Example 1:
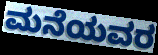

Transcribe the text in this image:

ಮನೆಯವರ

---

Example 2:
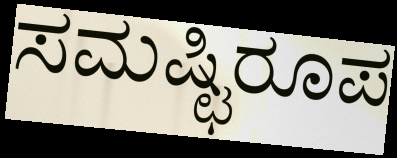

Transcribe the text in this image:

ಸಮಷ್ಟಿರೂಪ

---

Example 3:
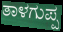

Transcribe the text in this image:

ತಾಳಗುಪ್ಪ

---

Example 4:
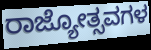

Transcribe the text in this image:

ರಾಜ್ಯೋತ್ಸವಗಳ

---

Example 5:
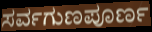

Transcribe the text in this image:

ಸರ್ವಗುಣಪೂರ್ಣ